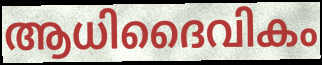
ആധിദൈവികം